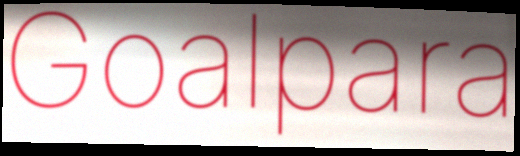
Goalpara